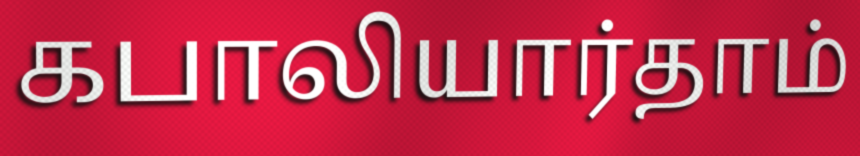
கபாலியார்தாம்